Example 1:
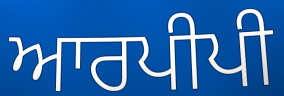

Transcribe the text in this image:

ਆਰਪੀਪੀ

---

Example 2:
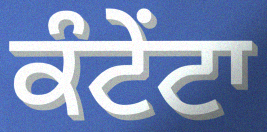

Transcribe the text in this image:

ਕੰਟੇਂਟਾ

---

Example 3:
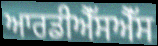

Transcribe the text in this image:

ਆਰਡੀਐੱਸਐੱਸ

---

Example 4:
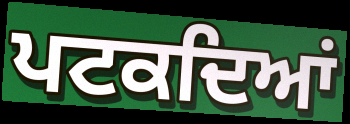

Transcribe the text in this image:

ਪਟਕਦਿਆਂ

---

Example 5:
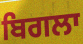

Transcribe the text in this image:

ਬਿਗਲਾ